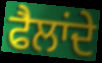
ਫੈਲਾਂਦੇ